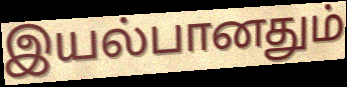
இயல்பானதும்